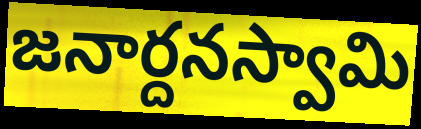
జనార్దనస్వామి